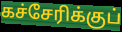
கச்சேரிக்குப்